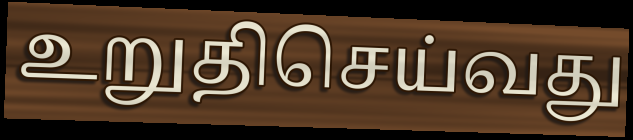
உறுதிசெய்வது